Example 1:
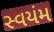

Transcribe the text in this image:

સ્વયંમ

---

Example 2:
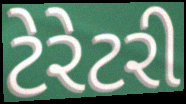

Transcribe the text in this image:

ટેરેટરી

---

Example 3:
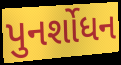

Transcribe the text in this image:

પુનર્શોધન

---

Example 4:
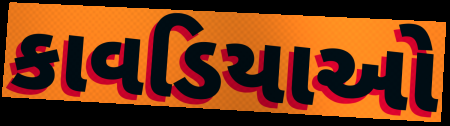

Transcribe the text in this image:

કાવડિયાઓ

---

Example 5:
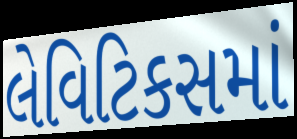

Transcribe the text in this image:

લેવિટિકસમાં